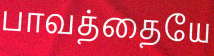
பாவத்தையே